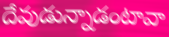
దేవుడున్నాడంటావా